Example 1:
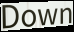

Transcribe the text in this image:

Down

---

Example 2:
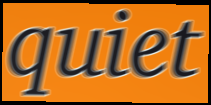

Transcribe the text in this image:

quiet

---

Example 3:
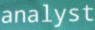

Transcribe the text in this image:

analyst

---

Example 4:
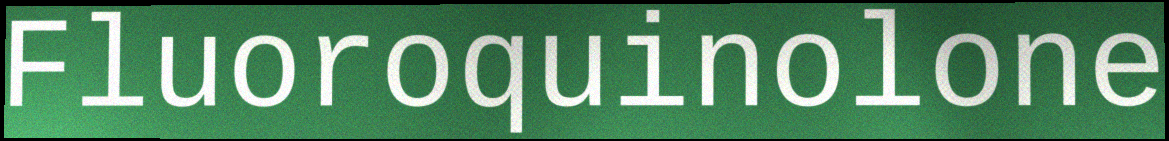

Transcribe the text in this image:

Fluoroquinolone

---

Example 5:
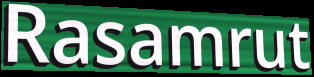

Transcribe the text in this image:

Rasamrut